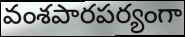
వంశపారపర్యంగా